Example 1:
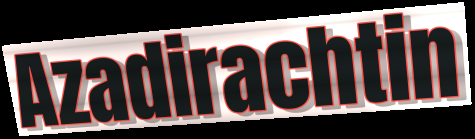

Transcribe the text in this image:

Azadirachtin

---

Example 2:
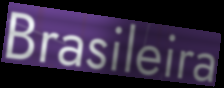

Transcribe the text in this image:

Brasileira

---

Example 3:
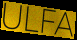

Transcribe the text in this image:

ULFA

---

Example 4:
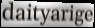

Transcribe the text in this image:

daityarige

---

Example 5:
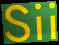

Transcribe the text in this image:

Sii